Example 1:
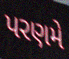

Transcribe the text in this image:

પરણમે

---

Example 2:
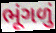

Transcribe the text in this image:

ભૂંગળું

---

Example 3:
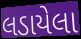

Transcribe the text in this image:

લડાયેલા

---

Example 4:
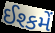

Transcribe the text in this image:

ઈશ્કમેં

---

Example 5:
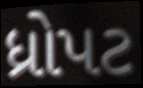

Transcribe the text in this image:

ધ્રોપટ